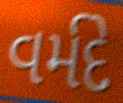
વર્મદે